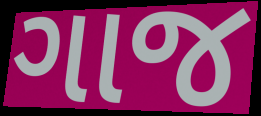
ગાજ